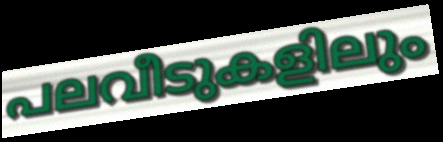
പലവീടുകളിലും